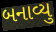
બનાવ્યુ